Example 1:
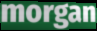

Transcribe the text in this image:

morgan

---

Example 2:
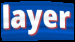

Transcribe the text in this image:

layer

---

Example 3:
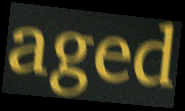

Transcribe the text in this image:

aged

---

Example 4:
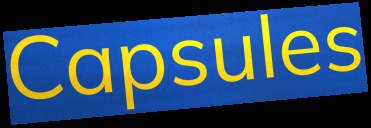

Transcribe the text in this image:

Capsules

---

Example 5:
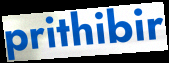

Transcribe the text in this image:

prithibir